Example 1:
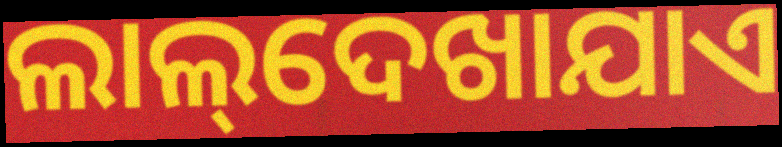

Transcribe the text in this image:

ଲାଲ୍‌ଦେଖାଯାଏ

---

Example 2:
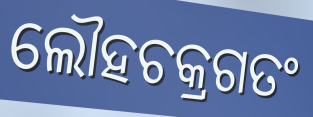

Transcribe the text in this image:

ଲୌହଚକ୍ରଗତଂ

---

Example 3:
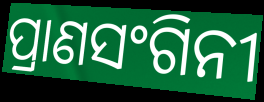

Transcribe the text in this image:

ପ୍ରାଣସଂଗିନୀ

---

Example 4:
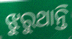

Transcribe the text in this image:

ଝୁରୁଥାନ୍ତି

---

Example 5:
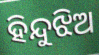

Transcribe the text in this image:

ହିନ୍ଦୁଝିଅ